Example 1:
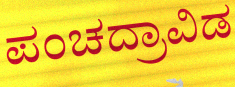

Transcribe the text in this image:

ಪಂಚದ್ರಾವಿಡ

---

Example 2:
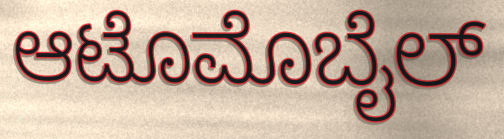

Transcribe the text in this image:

ಆಟೊಮೊಬೈಲ್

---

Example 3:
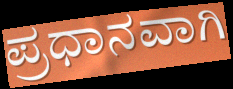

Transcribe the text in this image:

ಪ್ರಧಾನವಾಗಿ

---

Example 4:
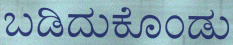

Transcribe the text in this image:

ಬಡಿದುಕೊಂಡು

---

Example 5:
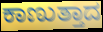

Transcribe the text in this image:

ಕಾಣುತ್ತಾದ